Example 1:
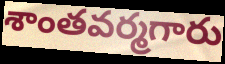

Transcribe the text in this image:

శాంతవర్మగారు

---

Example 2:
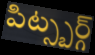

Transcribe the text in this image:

పిట్స్బర్గ్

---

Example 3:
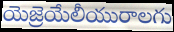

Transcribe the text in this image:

యెజ్రెయేలీయురాలగు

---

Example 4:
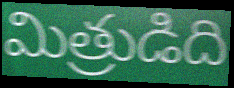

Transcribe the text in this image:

మిత్రుడిది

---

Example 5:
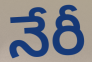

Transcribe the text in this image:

నేరీ